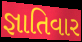
જ્ઞાતિવાર